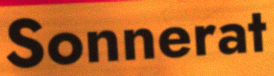
Sonnerat